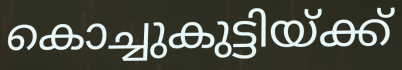
കൊച്ചുകുട്ടിയ്ക്ക്